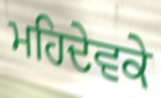
ਮਹਿਦੇਵਕੇ